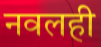
नवलही